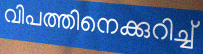
വിപത്തിനെക്കുറിച്ച്